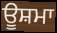
ਊਸ਼ਮਾ